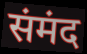
संमंद